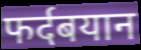
फर्दबयान